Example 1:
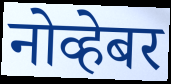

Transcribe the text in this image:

नोव्हेबर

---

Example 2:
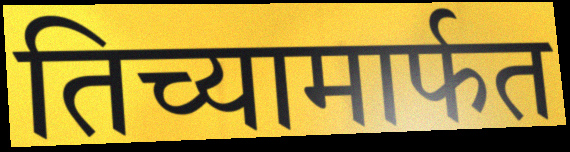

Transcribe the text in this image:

तिच्यामार्फत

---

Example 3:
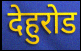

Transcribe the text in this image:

देहुरोड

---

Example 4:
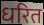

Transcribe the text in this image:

धरित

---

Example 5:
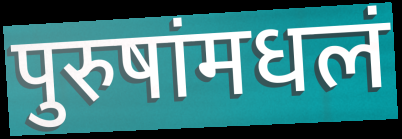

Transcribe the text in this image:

पुरुषांमधलं